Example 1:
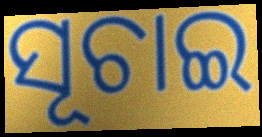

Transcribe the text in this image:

ସୂଚାଇ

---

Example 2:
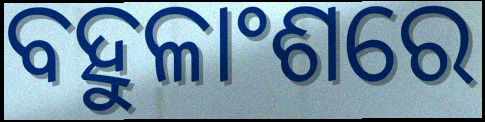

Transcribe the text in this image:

ବହୁଳାଂଶରେ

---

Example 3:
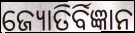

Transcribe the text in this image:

ଜ୍ୟୋତିର୍ବିଜ୍ଞାନ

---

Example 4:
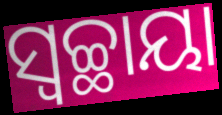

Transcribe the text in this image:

ସ୍ୱଚ୍ଛାୟା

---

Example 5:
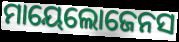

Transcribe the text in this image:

ମାୟେଲୋଜେନସ